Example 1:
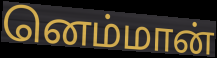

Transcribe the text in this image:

னெம்மான்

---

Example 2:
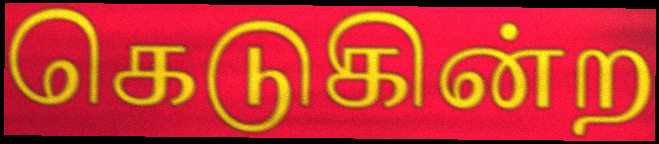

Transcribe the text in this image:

கெடுகின்ற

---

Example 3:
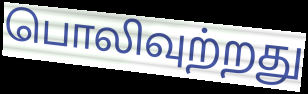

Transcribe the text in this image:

பொலிவுற்றது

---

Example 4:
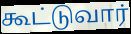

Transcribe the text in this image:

கூட்டுவார்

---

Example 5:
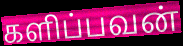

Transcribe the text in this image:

களிப்பவன்